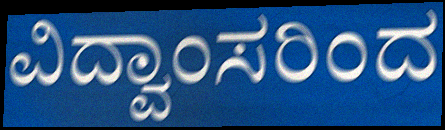
ವಿದ್ವಾಂಸರಿಂದ